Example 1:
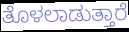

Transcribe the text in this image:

ತೊಳಲಾಡುತ್ತಾರೆ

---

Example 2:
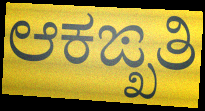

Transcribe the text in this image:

ಆಕಙ್ಖತಿ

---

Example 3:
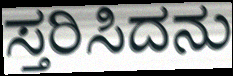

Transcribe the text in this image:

ಸ್ತರಿಸಿದನು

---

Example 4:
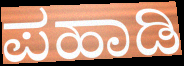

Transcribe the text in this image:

ಪಹಾಡಿ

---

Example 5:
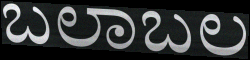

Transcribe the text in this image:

ಬಲಾಬಲ